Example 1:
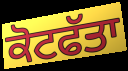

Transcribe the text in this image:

ਕੋਟਫੱਤਾ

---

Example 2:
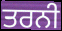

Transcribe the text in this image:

ਤਰਨੀ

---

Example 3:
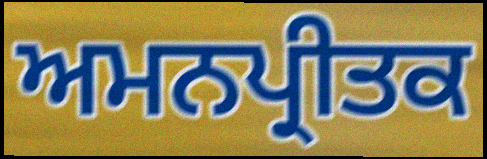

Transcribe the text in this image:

ਅਮਨਪ੍ਰੀਤਕ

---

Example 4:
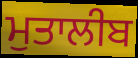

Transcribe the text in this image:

ਮੁਤਾਲੀਬ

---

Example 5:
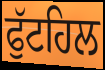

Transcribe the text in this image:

ਫੁੱਟਹਿਲ